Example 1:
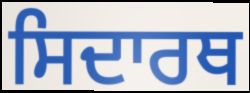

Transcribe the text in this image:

ਸਿਦਾਰਥ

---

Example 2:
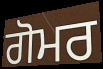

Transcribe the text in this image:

ਗੋਮਰ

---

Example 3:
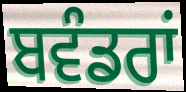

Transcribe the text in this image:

ਬਵੰਡਰਾਂ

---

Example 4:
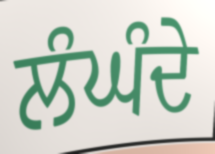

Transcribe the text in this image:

ਲੰਘੰਦੇ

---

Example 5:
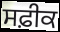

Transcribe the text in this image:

ਸਫ਼ੀਕ